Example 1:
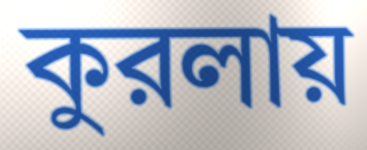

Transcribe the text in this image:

কুরলায়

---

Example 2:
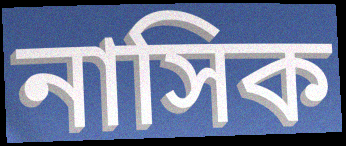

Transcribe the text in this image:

নাসিক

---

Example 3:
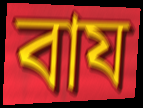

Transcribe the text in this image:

বায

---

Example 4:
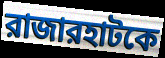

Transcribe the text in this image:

রাজারহাটকে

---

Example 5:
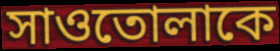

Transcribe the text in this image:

সাওতোলাকে